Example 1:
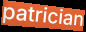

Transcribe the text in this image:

patrician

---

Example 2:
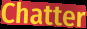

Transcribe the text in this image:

Chatter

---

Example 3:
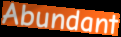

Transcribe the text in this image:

Abundant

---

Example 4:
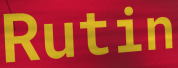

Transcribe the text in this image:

Rutin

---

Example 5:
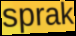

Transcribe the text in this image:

sprak